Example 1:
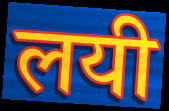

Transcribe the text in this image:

लयी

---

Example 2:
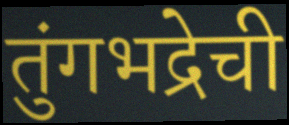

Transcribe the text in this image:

तुंगभद्रेची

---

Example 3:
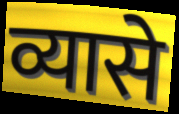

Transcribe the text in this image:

व्यासे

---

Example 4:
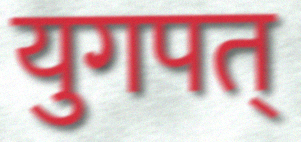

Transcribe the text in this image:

युगपत्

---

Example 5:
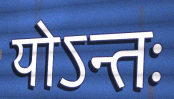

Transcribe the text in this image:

योऽन्तः